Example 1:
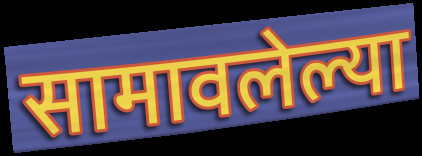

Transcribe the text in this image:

सामावलेल्या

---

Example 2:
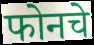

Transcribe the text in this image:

फोनचे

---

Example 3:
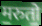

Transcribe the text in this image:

म॒रुतो॒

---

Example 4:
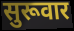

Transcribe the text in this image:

सुरूवार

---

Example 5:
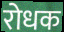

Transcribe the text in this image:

रोधक